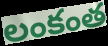
లంకంత